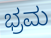
ಭ್ರಮ